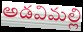
అడవిమల్లి